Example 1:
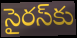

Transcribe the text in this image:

సైరస్‌కు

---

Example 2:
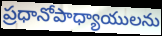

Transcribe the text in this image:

ప్రధానోపాధ్యాయులను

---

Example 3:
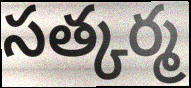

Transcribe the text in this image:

సత్కర్మ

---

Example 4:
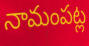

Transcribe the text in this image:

నామంపట్ల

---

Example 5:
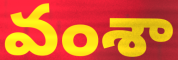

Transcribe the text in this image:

వంశా